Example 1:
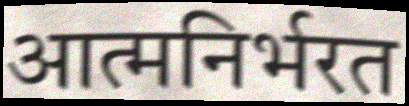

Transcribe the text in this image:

आत्मनिर्भरत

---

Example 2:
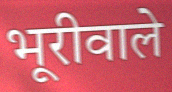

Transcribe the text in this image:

भूरीवाले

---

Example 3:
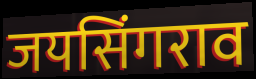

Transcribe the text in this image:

जयसिंगराव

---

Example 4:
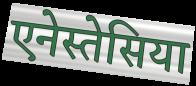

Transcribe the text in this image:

एनेस्तेसिया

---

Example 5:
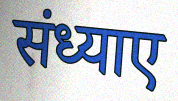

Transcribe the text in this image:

संध्याए